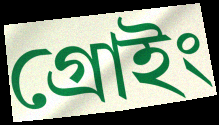
গ্রোইং